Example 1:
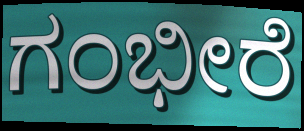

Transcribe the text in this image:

ಗಂಭೀರೆ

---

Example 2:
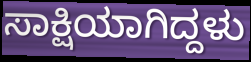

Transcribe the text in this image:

ಸಾಕ್ಷಿಯಾಗಿದ್ದಳು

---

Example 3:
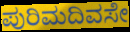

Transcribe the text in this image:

ಪುರಿಮದಿವಸೇ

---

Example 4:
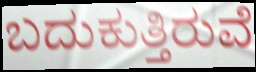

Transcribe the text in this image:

ಬದುಕುತ್ತಿರುವೆ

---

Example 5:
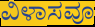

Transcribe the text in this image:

ವಿಳಾಸವೂ